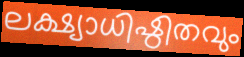
ലക്ഷ്യാധിഷ്ഠിതവും